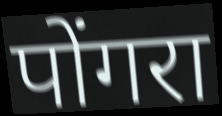
पोंगरा